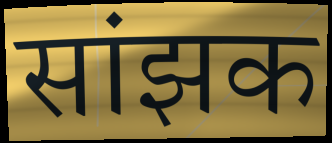
सांझक